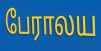
பேராலய